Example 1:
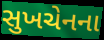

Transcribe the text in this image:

સુખચેનના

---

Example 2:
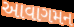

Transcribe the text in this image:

આવાગમન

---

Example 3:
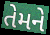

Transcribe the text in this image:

તેમને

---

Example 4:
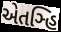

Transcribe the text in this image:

એતઞ્હિ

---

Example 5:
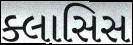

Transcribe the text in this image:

ક્લાસિસ